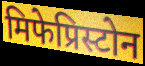
मिफेप्रिस्टोन